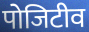
पोजिटीव